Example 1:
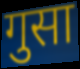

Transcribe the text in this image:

गुसा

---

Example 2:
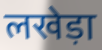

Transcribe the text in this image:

लखेड़ा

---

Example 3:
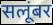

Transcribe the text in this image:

सलूंबर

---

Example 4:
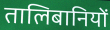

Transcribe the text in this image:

तालिबानियों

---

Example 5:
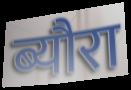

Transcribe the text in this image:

ब्‍यौरा